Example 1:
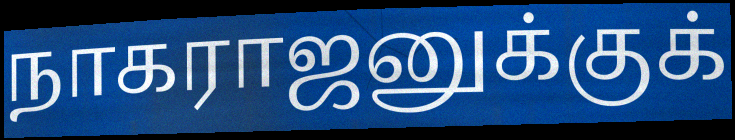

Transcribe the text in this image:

நாகராஜனுக்குக்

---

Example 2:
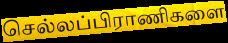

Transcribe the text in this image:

செல்லப்பிராணிகளை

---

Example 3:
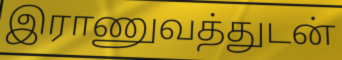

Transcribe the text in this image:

இராணுவத்துடன்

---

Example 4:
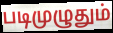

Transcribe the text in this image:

படிமுழுதும்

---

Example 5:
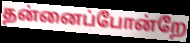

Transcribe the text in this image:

தன்னைப்போன்றே